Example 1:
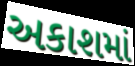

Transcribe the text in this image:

અકાશમાં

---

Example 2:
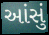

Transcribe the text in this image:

આંસું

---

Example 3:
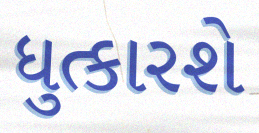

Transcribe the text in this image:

ધુત્કારશે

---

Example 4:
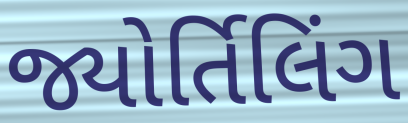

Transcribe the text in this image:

જ્યોર્તિલિંગ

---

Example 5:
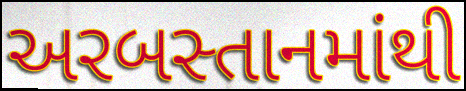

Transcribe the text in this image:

અરબસ્તાનમાંથી